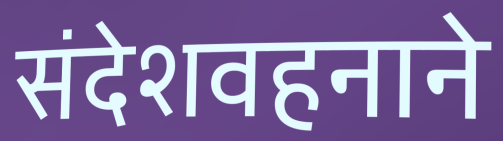
संदेशवहनाने